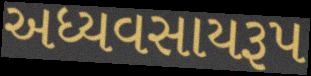
અધ્યવસાયરૂપ